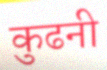
कुढनी